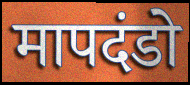
मापदंडो